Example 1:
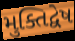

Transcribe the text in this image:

મુક્તિદ્વેષ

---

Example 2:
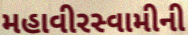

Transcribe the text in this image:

મહાવીરસ્વામીની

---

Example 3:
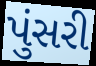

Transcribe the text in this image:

પુંસરી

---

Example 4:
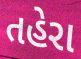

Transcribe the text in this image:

તહેરા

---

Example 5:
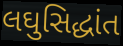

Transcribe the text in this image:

લઘુસિદ્ધાંત